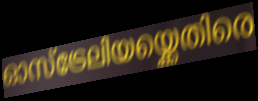
ഓസ്ട്രേലിയയ്ക്കെതിരെ